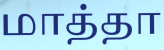
மாத்தா